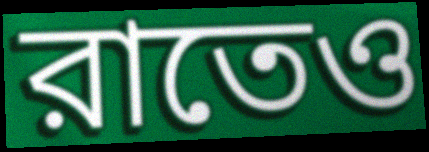
রাতেও